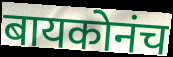
बायकोनंच